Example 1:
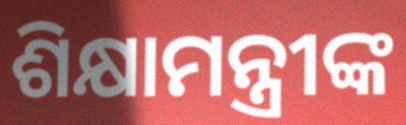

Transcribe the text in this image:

ଶିକ୍ଷାମନ୍ତ୍ରୀଙ୍କ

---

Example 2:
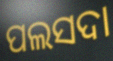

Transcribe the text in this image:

ପଲସଦା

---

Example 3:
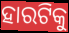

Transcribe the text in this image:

ହାରଟିକୁ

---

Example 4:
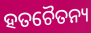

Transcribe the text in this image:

ହତଚୈତନ୍ୟ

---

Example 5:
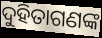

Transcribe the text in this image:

ଦୁହିତାଗଣଙ୍କ